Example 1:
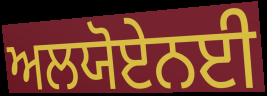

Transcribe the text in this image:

ਅਲਯੋਏਨਈ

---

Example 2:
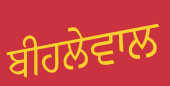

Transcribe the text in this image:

ਬੀਹਲੇਵਾਲ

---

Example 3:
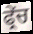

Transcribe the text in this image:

ਫ੍ਰੇੰਚ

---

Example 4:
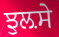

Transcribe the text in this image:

ਝੁਲ਼ਸੇ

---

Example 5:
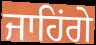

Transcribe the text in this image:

ਜਾਹਿਂਗੇ